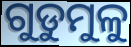
ଗୁଡୁମୁଳୁ